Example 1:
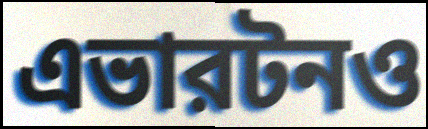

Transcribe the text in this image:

এভারটনও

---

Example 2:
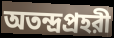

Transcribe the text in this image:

অতন্দ্রপ্রহরী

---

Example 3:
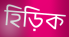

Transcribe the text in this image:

হিড়িক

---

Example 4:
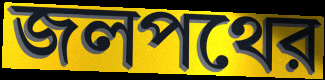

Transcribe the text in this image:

জলপথের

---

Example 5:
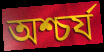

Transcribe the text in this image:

অশ্চর্য